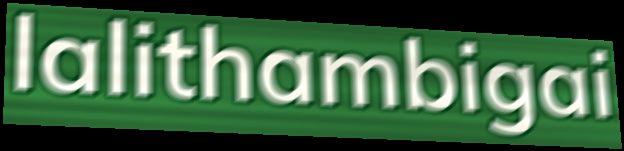
lalithambigai